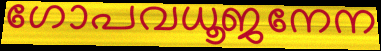
ഗോപവധൂജനേന